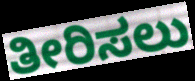
ತೀರಿಸಲು